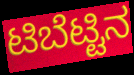
ಟಿಬೆಟ್ಟಿನ